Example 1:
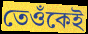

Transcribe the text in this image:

তেওঁকেই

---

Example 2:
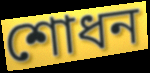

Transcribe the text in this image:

শোধন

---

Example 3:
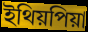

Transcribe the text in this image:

ইথিয়পিয়া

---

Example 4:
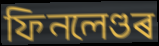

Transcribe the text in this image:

ফিনলেণ্ডৰ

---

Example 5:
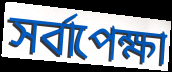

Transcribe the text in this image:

সৰ্বাপেক্ষা